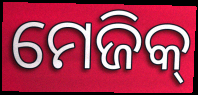
ମେଜିକ୍